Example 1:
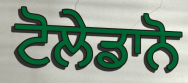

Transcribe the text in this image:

ਟੋਲੇਡਾਨੋ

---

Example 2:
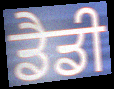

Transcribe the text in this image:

ਡੈਡੀ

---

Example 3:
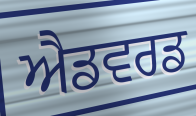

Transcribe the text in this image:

ਐਡਵਰਡ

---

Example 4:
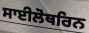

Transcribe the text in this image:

ਸਾਈਲੋਥਰਿਨ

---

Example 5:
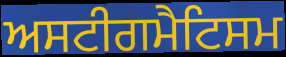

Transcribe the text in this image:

ਅਸਟੀਗਮੈਟਿਸਮ